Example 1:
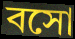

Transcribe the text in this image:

বসো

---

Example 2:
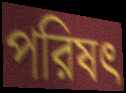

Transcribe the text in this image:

পরিষৎ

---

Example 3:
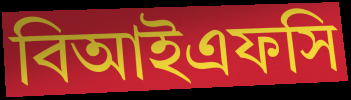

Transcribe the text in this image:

বিআইএফসি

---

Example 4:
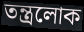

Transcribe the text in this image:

তন্ত্রলোক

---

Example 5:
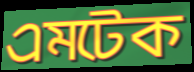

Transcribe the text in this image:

এমটেক